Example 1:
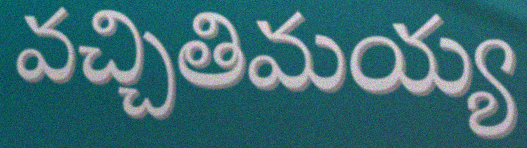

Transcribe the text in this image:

వచ్చితిమయ్య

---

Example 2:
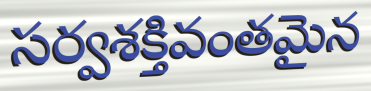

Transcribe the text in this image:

సర్వశక్తివంతమైన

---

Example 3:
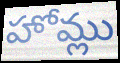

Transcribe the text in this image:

హోమ్లు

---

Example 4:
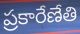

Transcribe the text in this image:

ప్రకారేణేతి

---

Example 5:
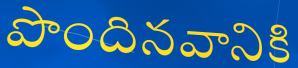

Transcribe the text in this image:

పొందినవానికి